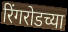
रिंगरोडच्या